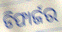
ଡିଫାର୍ଜର